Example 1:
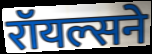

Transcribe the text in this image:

रॉयल्सने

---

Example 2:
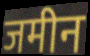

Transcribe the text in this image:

जमीन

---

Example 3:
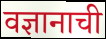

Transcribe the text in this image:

वज्ञानाची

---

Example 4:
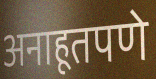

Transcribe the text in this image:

अनाहूतपणे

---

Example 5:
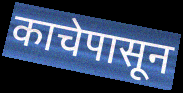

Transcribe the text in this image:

काचेपासून